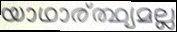
യാഥാര്ത്ഥ്യമല്ല